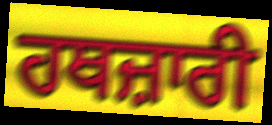
ਹਥਜ਼ਾਰੀ